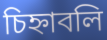
চিহ্নাবলি